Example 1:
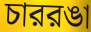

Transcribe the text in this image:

চাররঙা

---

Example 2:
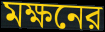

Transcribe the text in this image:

মক্ষনের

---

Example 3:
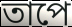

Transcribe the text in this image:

তাপে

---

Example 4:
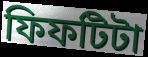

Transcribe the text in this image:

ফিফটিটা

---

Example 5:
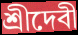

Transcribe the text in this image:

শ্রীদেবী